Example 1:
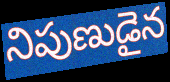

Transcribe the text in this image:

నిపుణుడైన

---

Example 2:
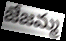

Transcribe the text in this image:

జేజమ్మ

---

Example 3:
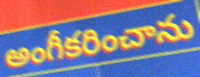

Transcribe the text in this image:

అంగీకరించాను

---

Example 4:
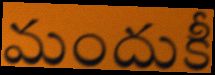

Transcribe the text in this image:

మందుకీ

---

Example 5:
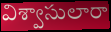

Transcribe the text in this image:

విశ్వాసులారా